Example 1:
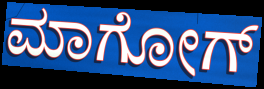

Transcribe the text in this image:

ಮಾಗೋಗ್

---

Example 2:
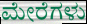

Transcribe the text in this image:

ಮೇರೆಗಳು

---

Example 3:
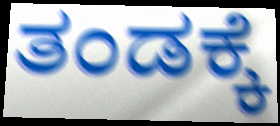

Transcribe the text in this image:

ತಂಡಕ್ಕೆ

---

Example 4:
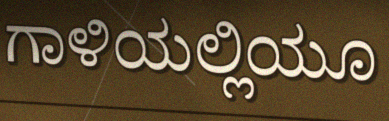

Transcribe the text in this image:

ಗಾಳಿಯಲ್ಲಿಯೂ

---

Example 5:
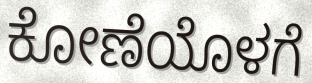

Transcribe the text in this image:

ಕೋಣೆಯೊಳಗೆ